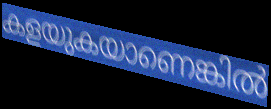
കളയുകയാണെങ്കിൽ